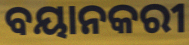
ବୟାନକରୀ